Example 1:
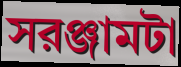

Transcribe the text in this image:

সরঞ্জামটা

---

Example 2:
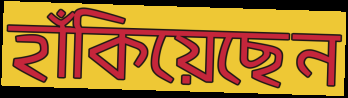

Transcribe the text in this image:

হাঁকিয়েছেন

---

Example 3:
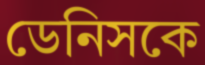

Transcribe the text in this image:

ডেনিসকে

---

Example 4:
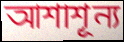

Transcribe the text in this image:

আশাশূন্য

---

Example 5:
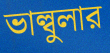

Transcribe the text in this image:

ভাল্বুলার